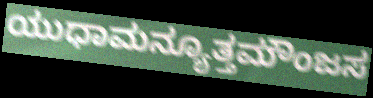
ಯುಧಾಮನ್ಯೂತ್ತಮೌಂಜಸ